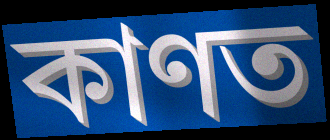
কাণত